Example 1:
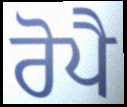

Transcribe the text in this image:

ਰੋਪੈ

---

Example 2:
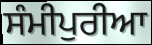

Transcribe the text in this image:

ਸੰਮੀਪੁਰੀਆ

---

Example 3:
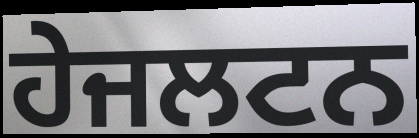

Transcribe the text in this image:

ਹੇਜਲਟਨ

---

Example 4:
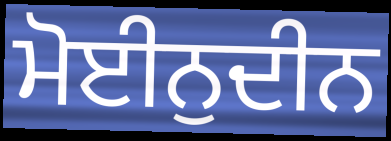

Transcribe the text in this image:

ਮੋਈਨੁਦੀਨ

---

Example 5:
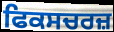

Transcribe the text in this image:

ਫਿਕਸਚਰਜ਼